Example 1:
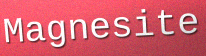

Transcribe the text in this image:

Magnesite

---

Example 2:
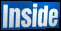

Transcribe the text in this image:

Inside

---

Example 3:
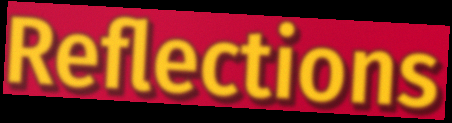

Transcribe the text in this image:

Reflections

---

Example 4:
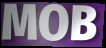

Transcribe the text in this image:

MOB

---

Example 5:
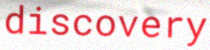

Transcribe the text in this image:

discovery